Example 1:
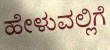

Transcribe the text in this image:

ಹೇಳುವಲ್ಲಿಗೆ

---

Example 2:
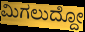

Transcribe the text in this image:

ಮಿಗಲುದ್ದೋ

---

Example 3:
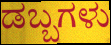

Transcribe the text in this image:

ಡಬ್ಬಗಳು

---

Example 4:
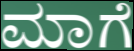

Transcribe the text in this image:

ಮಾಗೆ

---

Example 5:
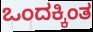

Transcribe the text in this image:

ಒಂದಕ್ಕಿಂತ